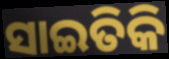
ସାଇତିକି